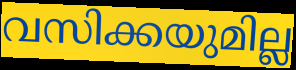
വസിക്കയുമില്ല